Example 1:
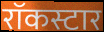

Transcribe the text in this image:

रॉकस्टार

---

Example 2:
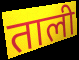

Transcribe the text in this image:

ताली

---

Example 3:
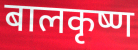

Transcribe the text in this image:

बालकृष्ण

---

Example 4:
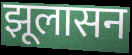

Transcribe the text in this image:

झूलासन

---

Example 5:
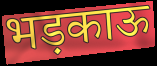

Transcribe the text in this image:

भड़काऊ